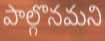
పాల్గొనమని